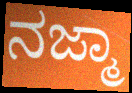
ನಜ್ಮಾ